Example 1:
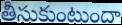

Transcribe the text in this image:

తీసుకుంటుందా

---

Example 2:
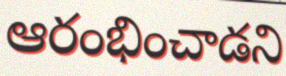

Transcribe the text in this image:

ఆరంభించాడని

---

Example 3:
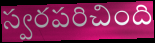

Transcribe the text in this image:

స్వరపరిచింది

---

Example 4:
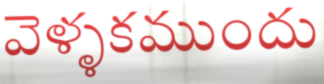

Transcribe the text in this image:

వెళ్ళకముందు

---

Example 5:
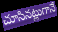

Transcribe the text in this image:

చూసినట్లుగానే